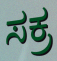
ಸಕ್ರ